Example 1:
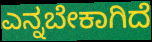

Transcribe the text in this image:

ಎನ್ನಬೇಕಾಗಿದೆ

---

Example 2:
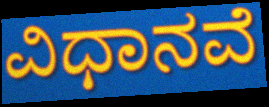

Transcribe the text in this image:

ವಿಧಾನವೆ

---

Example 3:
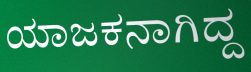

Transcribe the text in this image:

ಯಾಜಕನಾಗಿದ್ದ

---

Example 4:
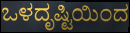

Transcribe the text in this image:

ಒಳದೃಷ್ಟಿಯಿಂದ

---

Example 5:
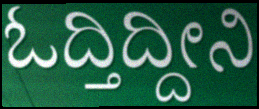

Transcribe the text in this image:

ಓದ್ತಿದ್ದೀನಿ